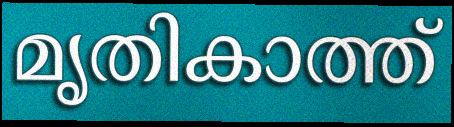
മൃതികാത്ത്